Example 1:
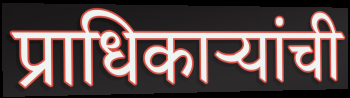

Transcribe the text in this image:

प्राधिकाऱ्यांची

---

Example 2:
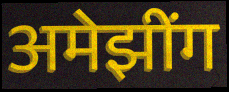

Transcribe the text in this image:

अमेझींग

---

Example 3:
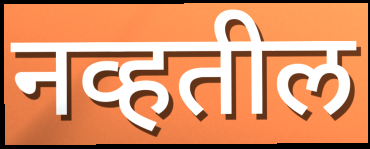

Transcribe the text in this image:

नव्हतील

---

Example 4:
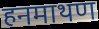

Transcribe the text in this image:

हनमाथण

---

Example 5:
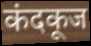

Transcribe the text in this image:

कंदकूज